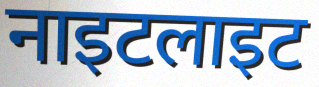
नाइटलाइट